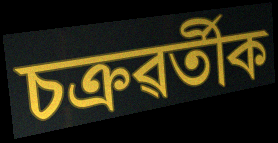
চক্ৰৱৰ্তীক